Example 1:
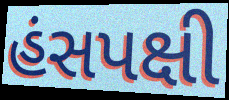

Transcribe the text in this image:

હંસપક્ષી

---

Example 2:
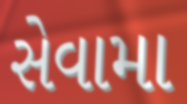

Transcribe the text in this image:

સેવામા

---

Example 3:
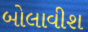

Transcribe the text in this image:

બોલાવીશ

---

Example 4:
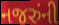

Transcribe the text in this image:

નજરુંની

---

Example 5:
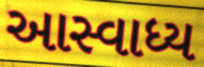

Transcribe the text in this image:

આસ્વાધ્ય